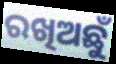
ରଖିଅଛୁଁ